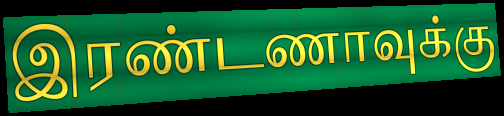
இரண்டணாவுக்கு